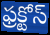
ఫ్రక్టోస్